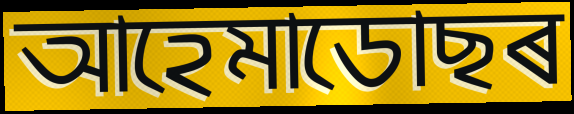
আহেমাডোছৰ